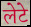
लेटे